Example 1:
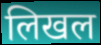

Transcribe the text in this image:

लिखल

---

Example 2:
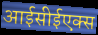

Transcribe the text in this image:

आईसीईएक्स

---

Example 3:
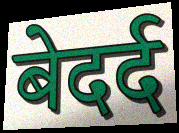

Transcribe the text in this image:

बेदर्द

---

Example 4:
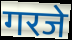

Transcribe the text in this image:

गरजे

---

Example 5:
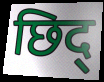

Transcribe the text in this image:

छिद्